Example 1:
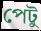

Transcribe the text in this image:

পেটু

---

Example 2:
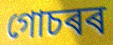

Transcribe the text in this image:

গোচৰৰ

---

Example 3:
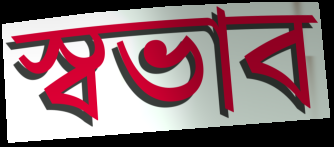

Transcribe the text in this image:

স্বভাব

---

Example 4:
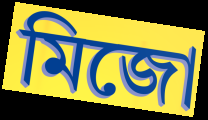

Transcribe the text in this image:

মিজো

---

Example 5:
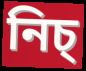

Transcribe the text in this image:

নিচ্